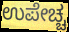
ಉಪೇಚ್ಚ